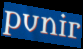
punir